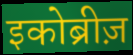
इकोब्रीज़